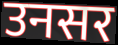
उनसर